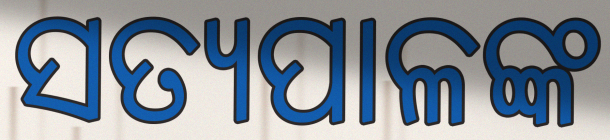
ସତ୍ୟପାଳଙ୍କ